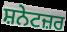
ਸ਼ਨੇਟਜ਼ਰ